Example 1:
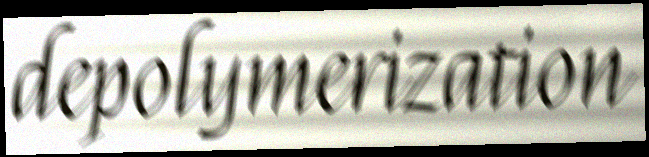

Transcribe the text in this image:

depolymerization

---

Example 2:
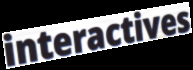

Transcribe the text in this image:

interactives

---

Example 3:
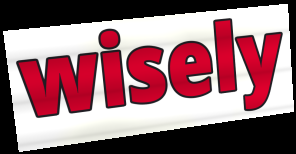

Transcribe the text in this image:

wisely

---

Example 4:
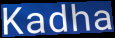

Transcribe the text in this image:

Kadha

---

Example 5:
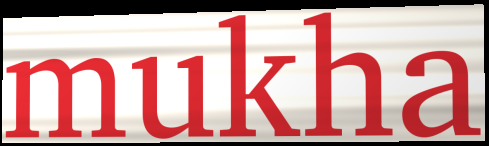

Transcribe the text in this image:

mukha